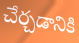
చేర్చడానికి